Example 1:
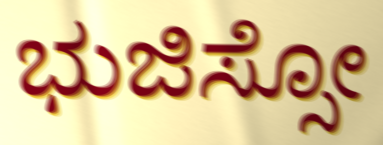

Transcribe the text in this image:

ಭುಜಿಸ್ಸೋ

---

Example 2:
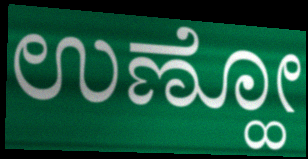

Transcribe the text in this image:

ಉಣ್ಹೋ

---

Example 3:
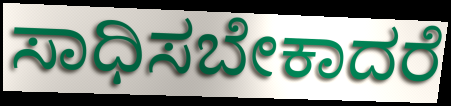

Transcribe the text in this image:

ಸಾಧಿಸಬೇಕಾದರೆ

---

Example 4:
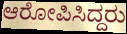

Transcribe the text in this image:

ಆರೋಪಿಸಿದ್ದರು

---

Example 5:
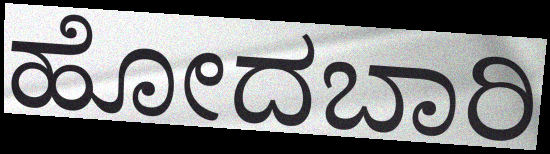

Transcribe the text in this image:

ಹೋದಬಾರಿ